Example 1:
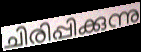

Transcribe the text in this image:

ചിരിപ്പിക്കുന്നു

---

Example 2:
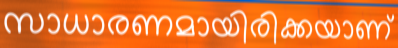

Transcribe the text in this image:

സാധാരണമായിരിക്കയാണ്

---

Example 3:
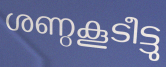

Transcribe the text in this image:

ശണ്ഠകൂടീട്ടു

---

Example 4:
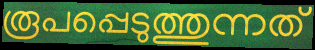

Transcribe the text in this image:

രൂപപ്പെടുത്തുന്നത്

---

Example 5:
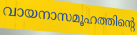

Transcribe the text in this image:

വായനാസമൂഹത്തിന്റെ